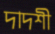
দাদশী